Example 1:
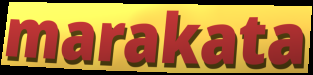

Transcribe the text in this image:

marakata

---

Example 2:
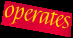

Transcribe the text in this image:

operates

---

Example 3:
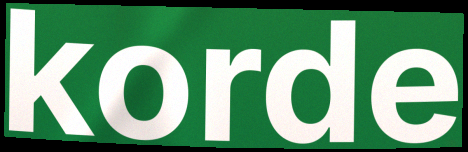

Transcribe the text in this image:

korde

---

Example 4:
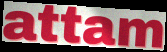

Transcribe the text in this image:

attam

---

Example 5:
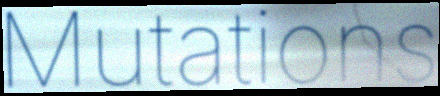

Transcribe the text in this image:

Mutations